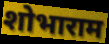
शोभाराम